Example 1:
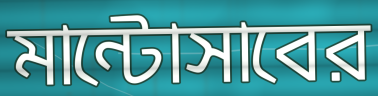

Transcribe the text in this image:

মান্টোসাবের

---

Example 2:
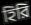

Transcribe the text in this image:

হিরি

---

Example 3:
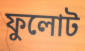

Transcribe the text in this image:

ফুলোট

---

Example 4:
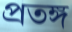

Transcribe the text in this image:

প্রতঙ্গ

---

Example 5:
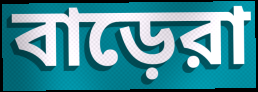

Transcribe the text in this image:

বাড়েরা